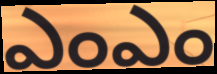
ఎంఎం